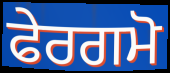
ਫੇਰਗਮੋ